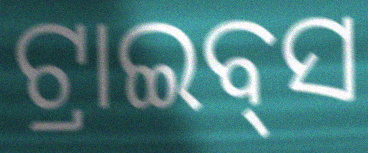
ଟ୍ରାଇବ୍‌ସ